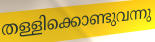
തള്ളിക്കൊണ്ടുവന്നു